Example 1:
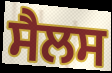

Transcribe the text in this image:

ਸੈਲਸ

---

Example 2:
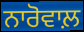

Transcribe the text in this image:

ਨਾਰੋਵਾਲ਼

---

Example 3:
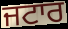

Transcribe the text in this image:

ਜਟਾਰ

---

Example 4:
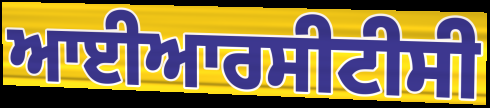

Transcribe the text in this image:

ਆਈਆਰਸੀਟੀਸੀ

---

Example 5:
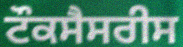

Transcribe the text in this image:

ਟੌਕਸੈਸਰੀਸ